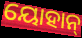
ୟୋହାନ୍